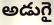
అడుగై